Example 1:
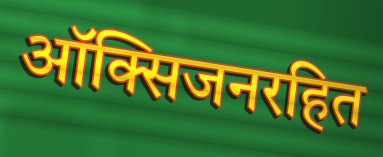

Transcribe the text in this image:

ऑक्सिजनरहित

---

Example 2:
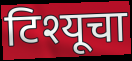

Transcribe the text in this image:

टिश्यूचा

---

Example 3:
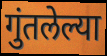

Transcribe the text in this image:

गुंतलेल्या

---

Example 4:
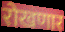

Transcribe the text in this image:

रोखणार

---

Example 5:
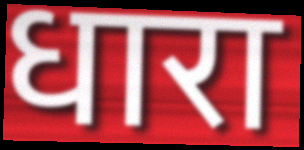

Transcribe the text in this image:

धारा